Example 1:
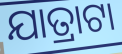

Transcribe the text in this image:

ଯାତ୍ରାଟା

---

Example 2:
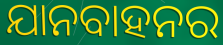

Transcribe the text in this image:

ଯାନବାହନର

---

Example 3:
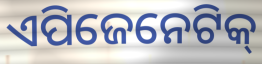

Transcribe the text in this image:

ଏପିଜେନେଟିକ୍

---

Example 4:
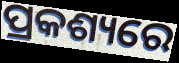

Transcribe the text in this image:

ପ୍ରକଶ୍ୟରେ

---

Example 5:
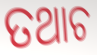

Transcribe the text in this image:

ତଥାଚ